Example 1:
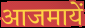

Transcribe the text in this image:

आजमायें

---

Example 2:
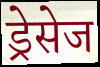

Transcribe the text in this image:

ड्रेसेज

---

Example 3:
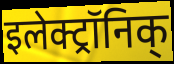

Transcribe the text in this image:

इलेक्ट्रॉनिक्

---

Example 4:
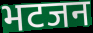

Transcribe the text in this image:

भटजन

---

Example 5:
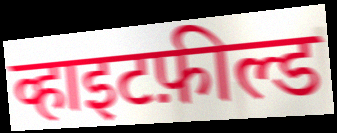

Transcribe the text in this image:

व्हाइटफ़ील्ड